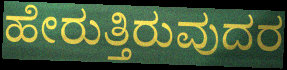
ಹೇರುತ್ತಿರುವುದರ